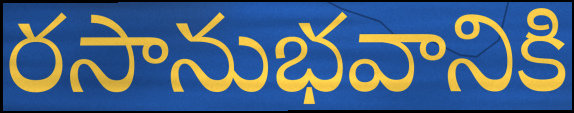
రసానుభవానికి